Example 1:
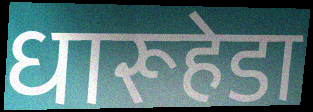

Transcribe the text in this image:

धारूहेडा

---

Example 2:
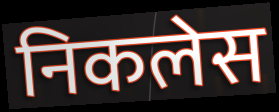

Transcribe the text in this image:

निकलेस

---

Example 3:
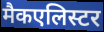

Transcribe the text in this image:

मैकएलिस्टर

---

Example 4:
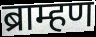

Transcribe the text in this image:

ब्राम्हण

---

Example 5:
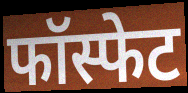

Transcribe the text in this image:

फॉस्फेट